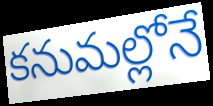
కనుమల్లోనే